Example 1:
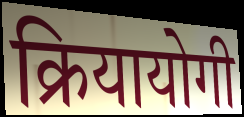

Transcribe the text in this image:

क्रियायोगी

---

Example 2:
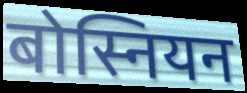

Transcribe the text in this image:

बोस्नियन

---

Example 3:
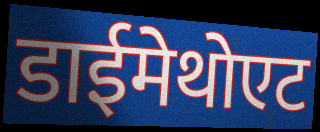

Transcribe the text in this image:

डाईमेथोएट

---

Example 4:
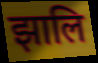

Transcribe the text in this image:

झालि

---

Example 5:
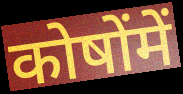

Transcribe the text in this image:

कोषोंमें